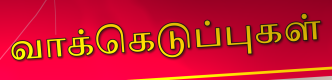
வாக்கெடுப்புகள்